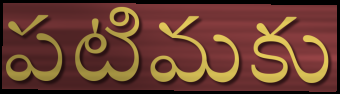
పటిమకు